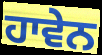
ਹਾਵੇਨ